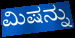
ಮಿಷನ್ನು